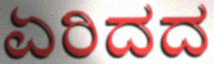
ಏರಿದದ